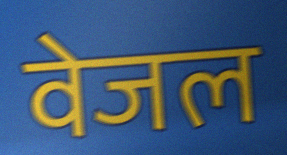
वेजल